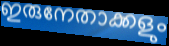
ഇരുനേതാക്കളും